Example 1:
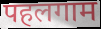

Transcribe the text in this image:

पहलगाम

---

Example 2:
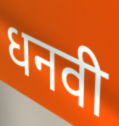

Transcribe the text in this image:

धनवी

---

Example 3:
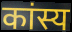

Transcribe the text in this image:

कांस्य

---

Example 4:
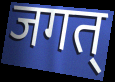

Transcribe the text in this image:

जगत्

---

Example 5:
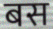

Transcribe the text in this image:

बस